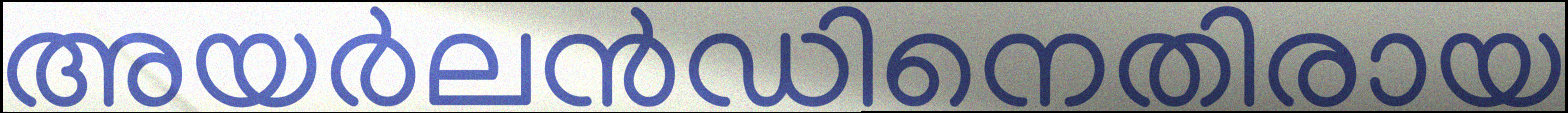
അയർലൻഡിനെതിരായ